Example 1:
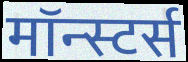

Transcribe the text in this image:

मॉन्स्टर्स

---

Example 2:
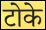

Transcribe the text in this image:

टोके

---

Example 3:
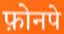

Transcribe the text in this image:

फ़ोनपे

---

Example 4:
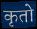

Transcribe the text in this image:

कृतो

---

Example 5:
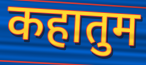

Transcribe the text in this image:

कहातुम